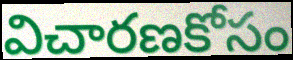
విచారణకోసం